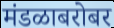
मंडळाबरोबर